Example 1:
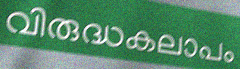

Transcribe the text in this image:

വിരുദ്ധകലാപം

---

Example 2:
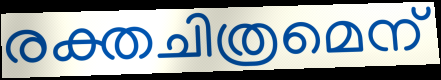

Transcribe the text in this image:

രക്തചിത്രമെന്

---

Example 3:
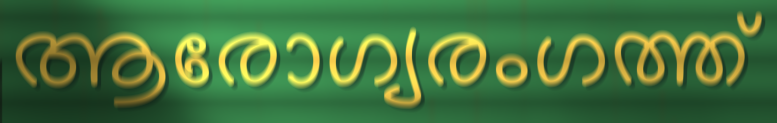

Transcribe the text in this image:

ആരോഗ്യരംഗത്ത്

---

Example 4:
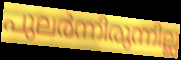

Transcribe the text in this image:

പുലർന്നിരുന്നില്ല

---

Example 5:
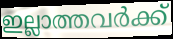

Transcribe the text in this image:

ഇല്ലാത്തവർക്ക്